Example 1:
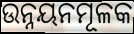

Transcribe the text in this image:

ଉନ୍ନୟନମୂଳକ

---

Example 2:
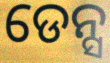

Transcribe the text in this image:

ଡେନ୍ସ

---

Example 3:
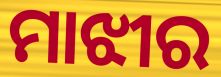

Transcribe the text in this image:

ମାଝୀର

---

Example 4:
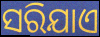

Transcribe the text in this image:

ସରିଯାଏ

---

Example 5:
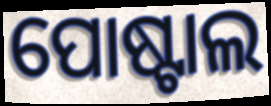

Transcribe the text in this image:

ପୋଷ୍ଟାଲ